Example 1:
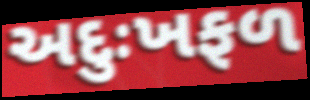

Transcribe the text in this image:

અદુઃખફળ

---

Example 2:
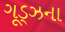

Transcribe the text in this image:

ગૂડ્ઝના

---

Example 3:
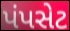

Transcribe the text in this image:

પંપસેટ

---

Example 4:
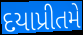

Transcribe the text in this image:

દયાપ્રીતમે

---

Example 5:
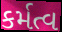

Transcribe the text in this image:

કર્મત્વ